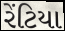
રેંટિયા